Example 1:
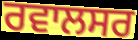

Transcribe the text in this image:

ਰਵਾਲਸਰ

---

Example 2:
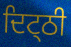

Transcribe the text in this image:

ਦਿਟ੍ਠੀ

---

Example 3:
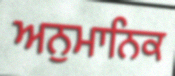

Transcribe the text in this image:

ਅਨੁਮਾਨਿਕ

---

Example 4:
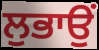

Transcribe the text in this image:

ਲੁਭਾਉਂ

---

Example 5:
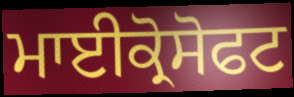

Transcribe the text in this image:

ਮਾਈਕ੍ਰੋਸੋਫਟ